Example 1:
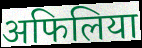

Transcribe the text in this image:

अफिलिया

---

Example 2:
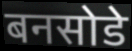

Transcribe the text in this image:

बनसोडे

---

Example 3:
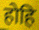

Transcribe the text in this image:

होहि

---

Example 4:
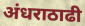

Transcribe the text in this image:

अंधराठाढी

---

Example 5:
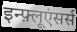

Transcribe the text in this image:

इन्फ़्लूएंसर्स